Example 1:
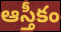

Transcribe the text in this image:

ఆస్తీకం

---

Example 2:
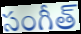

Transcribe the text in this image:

సంగీత్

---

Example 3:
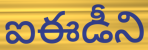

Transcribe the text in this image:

ఐఈడీని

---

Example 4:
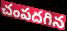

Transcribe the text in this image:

చంపదగిన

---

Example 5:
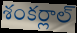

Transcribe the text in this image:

శంకర్లాల్